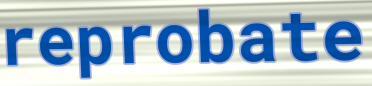
reprobate